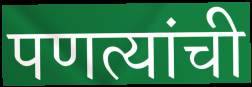
पणत्यांची